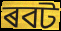
ৰবট